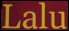
Lalu